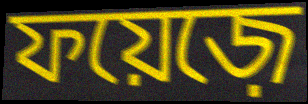
ফয়েজ়ে